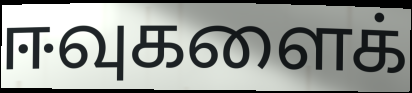
ஈவுகளைக்